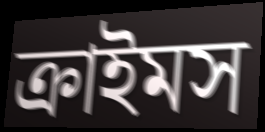
ক্রাইমস